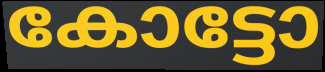
കോട്ടോ